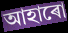
আহাৰো